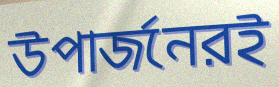
উপার্জনেরই